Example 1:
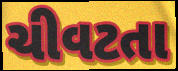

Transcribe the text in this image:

ચીવટતા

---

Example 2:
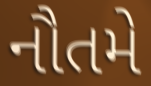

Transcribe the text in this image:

નૌતમે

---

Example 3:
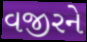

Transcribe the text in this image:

વજીરને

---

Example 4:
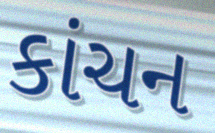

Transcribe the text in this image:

કાંચન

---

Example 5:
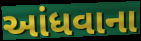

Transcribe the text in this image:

આંધવાના